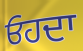
ਓਹਦਾ